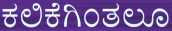
ಕಲಿಕೆಗಿಂತಲೂ